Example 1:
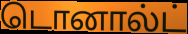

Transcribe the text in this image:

டொனால்ட்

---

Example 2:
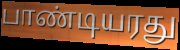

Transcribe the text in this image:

பாண்டியரது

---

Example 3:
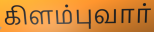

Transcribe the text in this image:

கிளம்புவார்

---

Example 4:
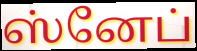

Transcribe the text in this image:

ஸ்னேப்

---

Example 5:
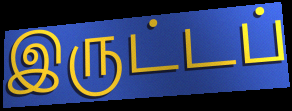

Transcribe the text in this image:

இருட்டப்